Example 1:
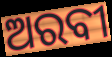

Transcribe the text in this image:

ଅରବୀ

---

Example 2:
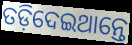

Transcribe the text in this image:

ତଡ଼ିଦେଇଥାନ୍ତେ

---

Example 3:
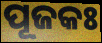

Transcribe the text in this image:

ପୂଜକଃ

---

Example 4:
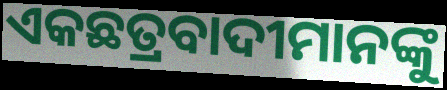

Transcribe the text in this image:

ଏକଛତ୍ରବାଦୀମାନଙ୍କୁ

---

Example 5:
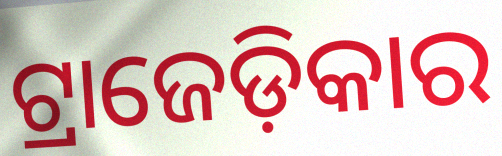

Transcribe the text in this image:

ଟ୍ରାଜେଡ଼ିକାର